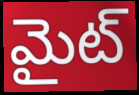
మైట్